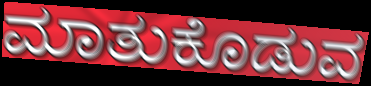
ಮಾತುಕೊಡುವ